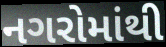
નગરોમાંથી